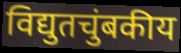
विद्युतचुंबकीय